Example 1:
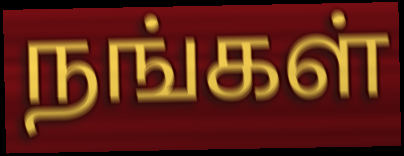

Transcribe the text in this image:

நங்கள்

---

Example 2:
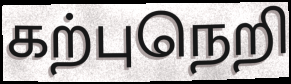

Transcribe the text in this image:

கற்புநெறி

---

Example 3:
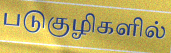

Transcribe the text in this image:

படுகுழிகளில்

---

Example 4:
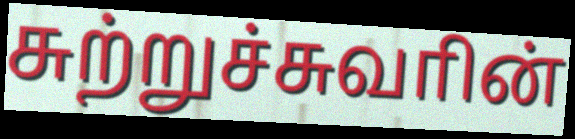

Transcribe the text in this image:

சுற்றுச்சுவரின்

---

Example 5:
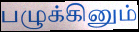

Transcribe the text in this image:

பழுக்கினும்